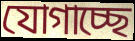
যোগাচ্ছে